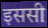
इससी